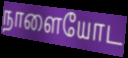
நாளையோட